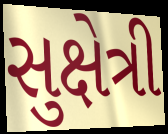
સુક્ષેત્રી